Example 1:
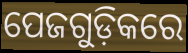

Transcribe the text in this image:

ପେଜଗୁଡ଼ିକରେ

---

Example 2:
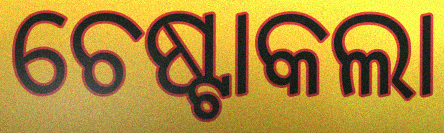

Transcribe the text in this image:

ଚେଷ୍ଟାକଲା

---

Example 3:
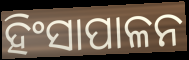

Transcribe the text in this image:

ହିଂସାପାଳନ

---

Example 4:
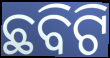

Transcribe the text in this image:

ଛବିଟି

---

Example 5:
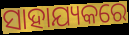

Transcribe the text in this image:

ସାହାଯ୍ୟକରେ